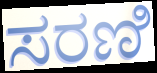
ಸರಣಿ